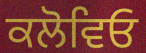
ਕਲੋਵਿਓ